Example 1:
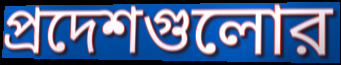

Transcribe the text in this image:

প্রদেশগুলোর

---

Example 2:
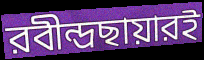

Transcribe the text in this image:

রবীন্দ্রছায়ারই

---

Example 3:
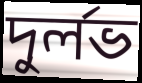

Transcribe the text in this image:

দুর্লভ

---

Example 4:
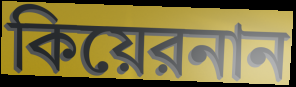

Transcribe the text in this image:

কিয়েরনান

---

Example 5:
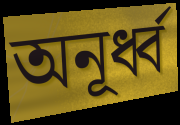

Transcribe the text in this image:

অনূর্ধ্ব